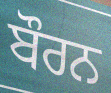
ਬੌਰਨ